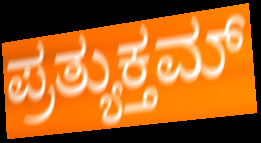
ಪ್ರತ್ಯುಕ್ತಮ್